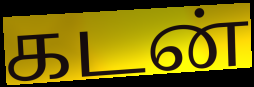
கடன்